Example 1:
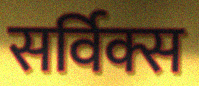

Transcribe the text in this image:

सर्विक्स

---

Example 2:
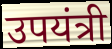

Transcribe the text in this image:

उपयंत्री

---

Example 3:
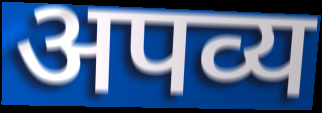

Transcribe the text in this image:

अपव्य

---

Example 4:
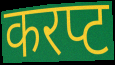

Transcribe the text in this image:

करप्ट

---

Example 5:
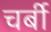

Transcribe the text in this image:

चर्बी